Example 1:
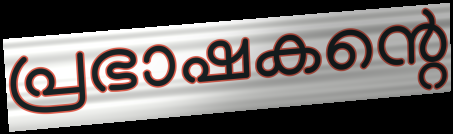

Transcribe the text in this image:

പ്രഭാഷകന്റെ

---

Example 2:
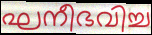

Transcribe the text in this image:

ഘനീഭവിച്ച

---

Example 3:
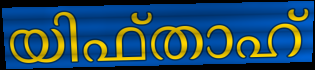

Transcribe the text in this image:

യിഫ്താഹ്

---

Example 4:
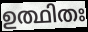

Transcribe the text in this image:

ഉത്ഥിതഃ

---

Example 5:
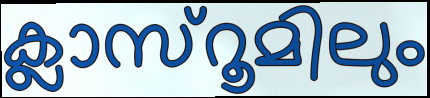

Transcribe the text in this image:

ക്ലാസ്റൂമിലും